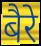
बैरे